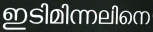
ഇടിമിന്നലിനെ